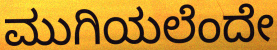
ಮುಗಿಯಲೆಂದೇ